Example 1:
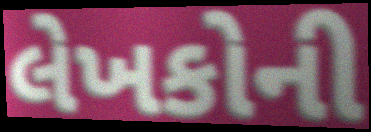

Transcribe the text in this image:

લેખકોની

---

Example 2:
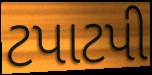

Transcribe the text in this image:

ટપાટપી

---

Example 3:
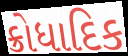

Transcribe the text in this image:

ક્રોધાદિક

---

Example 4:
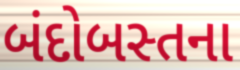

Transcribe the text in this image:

બંદોબસ્તના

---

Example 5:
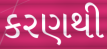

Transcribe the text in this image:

કરણથી